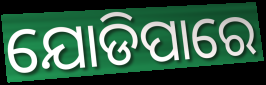
ଯୋଡିପାରେ